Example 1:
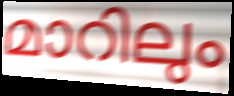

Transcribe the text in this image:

മാറിലും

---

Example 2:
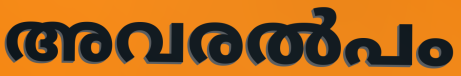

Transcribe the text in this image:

അവരൽപം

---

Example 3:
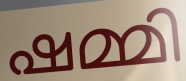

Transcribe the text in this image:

ഷമ്മി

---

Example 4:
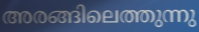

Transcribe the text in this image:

അരങ്ങിലെത്തുന്നു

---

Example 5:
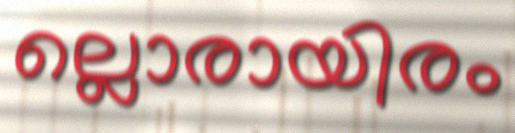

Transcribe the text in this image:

ല്ലൊരായിരം